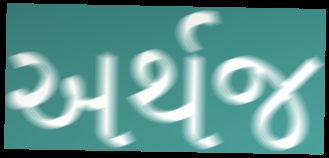
અર્થજ